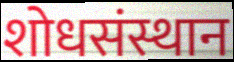
शोधसंस्थान